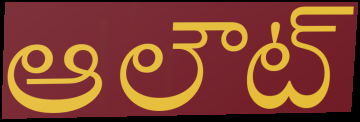
ఆలౌట్